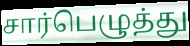
சார்பெழுத்து